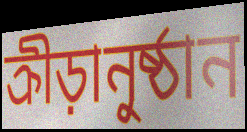
ক্ৰীড়ানুষ্ঠান